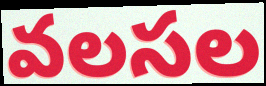
వలసల